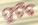
ଫୁଟିବ